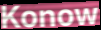
Konow